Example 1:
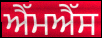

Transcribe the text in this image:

ਐੱਮਐੱਸ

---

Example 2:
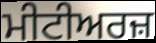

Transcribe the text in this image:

ਮੀਟੀਅਰਜ਼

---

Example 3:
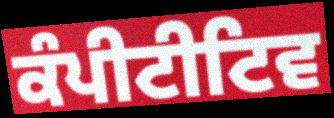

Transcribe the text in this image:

ਕੰਪੀਟੀਟਿਵ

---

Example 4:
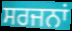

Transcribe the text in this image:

ਸਰਜਨਾਂ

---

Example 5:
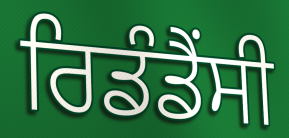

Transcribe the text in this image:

ਰਿਡੰਡੈਂਸੀ